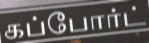
கப்போர்ட்